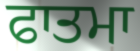
ਫਾਤਮਾ